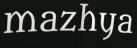
mazhya